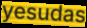
yesudas